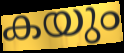
കയും